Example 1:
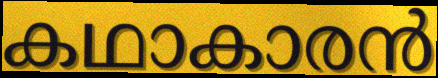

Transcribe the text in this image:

കഥാകാരൻ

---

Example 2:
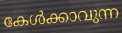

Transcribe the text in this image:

കേൾക്കാവുന്ന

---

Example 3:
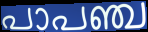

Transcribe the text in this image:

പാപഞ്ച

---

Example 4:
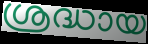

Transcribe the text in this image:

ശ്രദ്ധായ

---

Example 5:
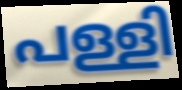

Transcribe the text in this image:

പള്ളി